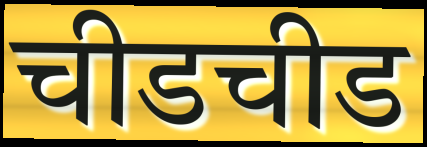
चीडचीड